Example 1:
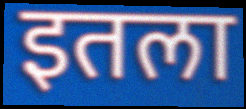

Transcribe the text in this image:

इतला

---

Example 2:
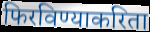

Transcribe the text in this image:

फिरविण्याकरिता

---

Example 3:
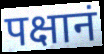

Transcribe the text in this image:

पक्षानं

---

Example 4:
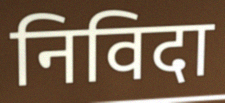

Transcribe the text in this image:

निविदा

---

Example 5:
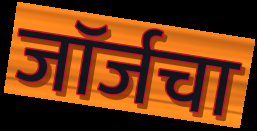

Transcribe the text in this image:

जॉर्जचा